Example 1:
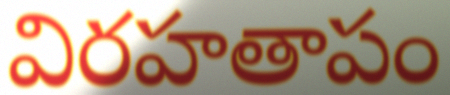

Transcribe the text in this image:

విరహతాపం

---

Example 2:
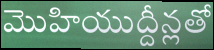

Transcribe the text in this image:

మొహియుద్దీన్లతో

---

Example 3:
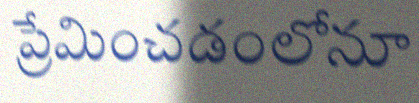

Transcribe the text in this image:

ప్రేమించడంలోనూ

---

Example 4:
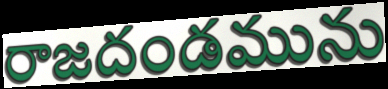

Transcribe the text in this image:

రాజదండమును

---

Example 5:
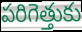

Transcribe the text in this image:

పరిగెత్తుకు